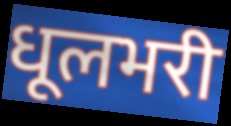
धूलभरी